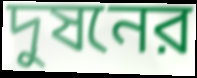
দুষনের